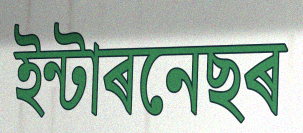
ইন্টাৰনেছৰ